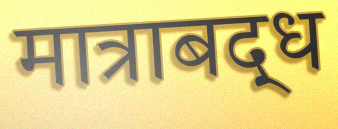
मात्राबद्ध